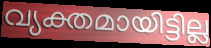
വ്യക്തമായിട്ടില്ല